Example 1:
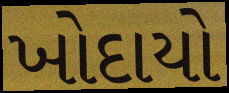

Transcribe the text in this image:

ખોદાયો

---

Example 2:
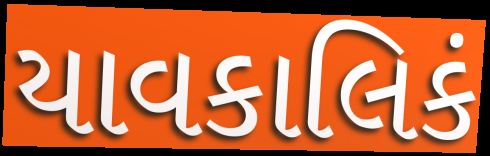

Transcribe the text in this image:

યાવકાલિકં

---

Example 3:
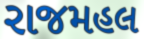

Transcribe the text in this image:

રાજમહલ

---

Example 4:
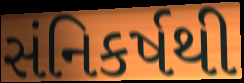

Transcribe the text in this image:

સંનિકર્ષથી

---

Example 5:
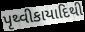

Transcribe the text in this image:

પૃથ્વીકાયાદિથી